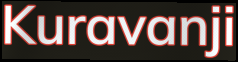
Kuravanji